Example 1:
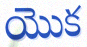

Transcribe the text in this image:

యొక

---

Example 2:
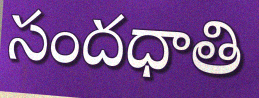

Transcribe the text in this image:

సందధాతి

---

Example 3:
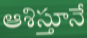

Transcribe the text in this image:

ఆశిస్తూనే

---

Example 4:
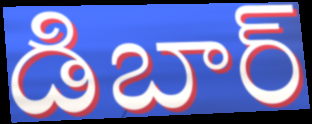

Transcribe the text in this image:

డిబార్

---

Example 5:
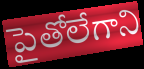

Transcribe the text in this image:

పైతోలేగాని